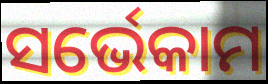
ସର୍ଭେକାମ